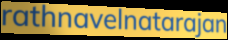
rathnavelnatarajan